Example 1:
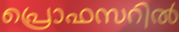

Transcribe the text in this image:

പ്രൊഫസറിൽ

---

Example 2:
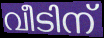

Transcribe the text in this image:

വീടിന്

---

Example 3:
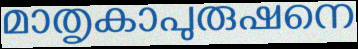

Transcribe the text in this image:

മാതൃകാപുരുഷനെ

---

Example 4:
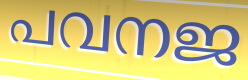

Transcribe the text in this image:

പവനജ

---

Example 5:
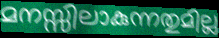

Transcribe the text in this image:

മനസ്സിലാകുന്നതുമില്ല